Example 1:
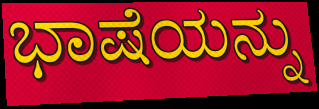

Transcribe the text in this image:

ಭಾಷೆಯನ್ನು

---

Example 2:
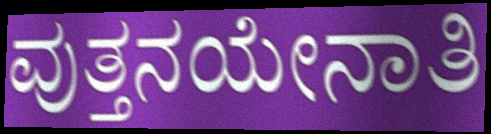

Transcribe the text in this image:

ವುತ್ತನಯೇನಾತಿ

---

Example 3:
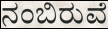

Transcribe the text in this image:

ನಂಬಿರುವೆ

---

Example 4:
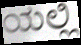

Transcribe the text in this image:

ಯಲ್ಲಿ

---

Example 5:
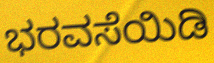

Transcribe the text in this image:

ಭರವಸೆಯಿಡಿ